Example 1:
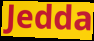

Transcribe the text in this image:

Jedda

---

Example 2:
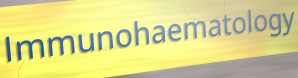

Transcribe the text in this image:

Immunohaematology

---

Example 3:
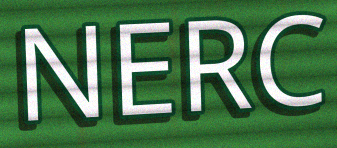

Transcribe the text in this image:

NERC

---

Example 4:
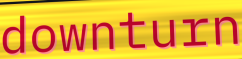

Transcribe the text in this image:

downturn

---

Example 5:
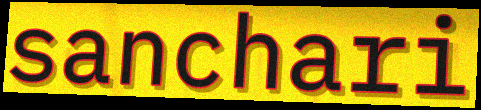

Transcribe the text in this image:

sanchari